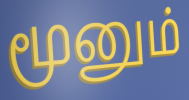
மூனும்